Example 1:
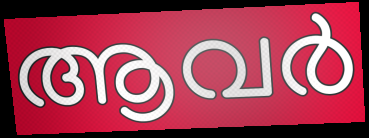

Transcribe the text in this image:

ആവർ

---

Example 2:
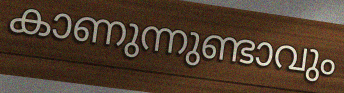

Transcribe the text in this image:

കാണുന്നുണ്ടാവും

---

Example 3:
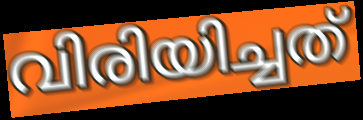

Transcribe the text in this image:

വിരിയിച്ചത്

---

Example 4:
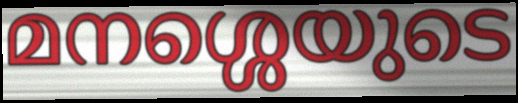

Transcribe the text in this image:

മനശ്ശെയുടെ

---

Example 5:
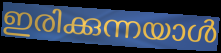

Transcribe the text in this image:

ഇരിക്കുന്നയാൾ